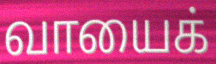
வாயைக்